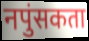
नपुंसकता